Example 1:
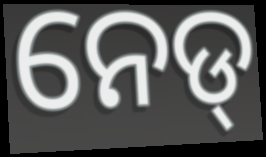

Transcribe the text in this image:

ନେଡ୍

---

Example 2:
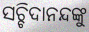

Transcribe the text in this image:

ସଚ୍ଚିଦାନନ୍ଦଙ୍କୁ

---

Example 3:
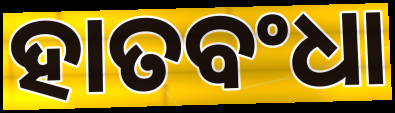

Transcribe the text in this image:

ହାତବଂଧା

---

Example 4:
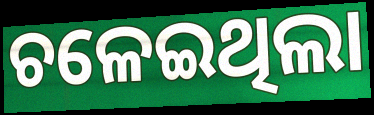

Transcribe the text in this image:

ଚଳେଇଥିଲା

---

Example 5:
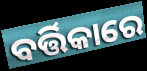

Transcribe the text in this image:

ବର୍ତ୍ତିକାରେ